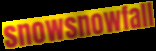
snowsnowfall